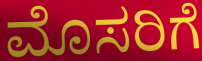
ಮೊಸರಿಗೆ